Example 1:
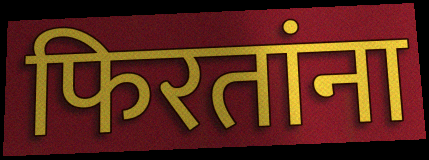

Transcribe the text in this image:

फिरतांना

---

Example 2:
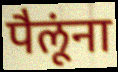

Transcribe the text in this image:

पैलूंना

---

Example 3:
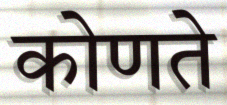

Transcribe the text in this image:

कोणते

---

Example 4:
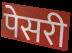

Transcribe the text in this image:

पेसरी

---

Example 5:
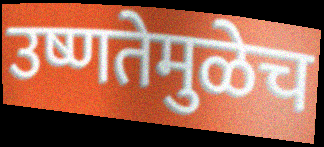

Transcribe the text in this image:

उष्णतेमुळेच